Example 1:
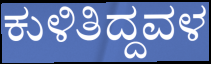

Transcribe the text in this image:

ಕುಳಿತಿದ್ದವಳ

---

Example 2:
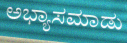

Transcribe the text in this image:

ಅಭ್ಯಾಸಮಾಡು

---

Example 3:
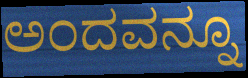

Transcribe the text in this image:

ಅಂದವನ್ನೂ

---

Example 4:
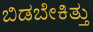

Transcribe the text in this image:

ಬಿಡಬೇಕಿತ್ತು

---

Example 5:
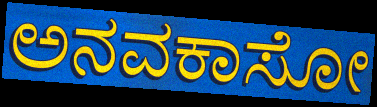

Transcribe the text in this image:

ಅನವಕಾಸೋ